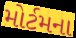
મોર્ટમના